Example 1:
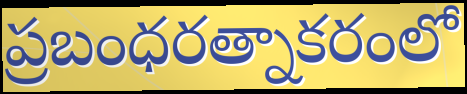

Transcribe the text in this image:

ప్రబంధరత్నాకరంలో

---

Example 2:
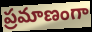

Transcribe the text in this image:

ప్రమాణంగా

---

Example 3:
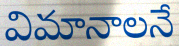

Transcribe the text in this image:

విమానాలనే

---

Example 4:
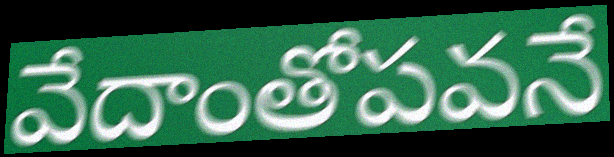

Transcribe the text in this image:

వేదాంతోపవనే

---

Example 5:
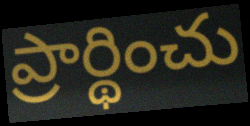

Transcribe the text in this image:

ప్రార్థించు